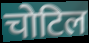
चोटिल